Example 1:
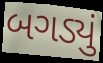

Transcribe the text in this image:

બગડ્યું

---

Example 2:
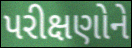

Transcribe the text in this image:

પરીક્ષણોને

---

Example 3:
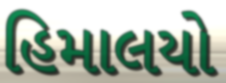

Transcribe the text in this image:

હિમાલયો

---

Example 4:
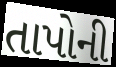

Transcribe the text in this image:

તાપોની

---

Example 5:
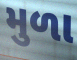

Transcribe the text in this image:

મુળા